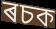
ৰচক